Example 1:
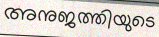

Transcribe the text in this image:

അനുജത്തിയുടെ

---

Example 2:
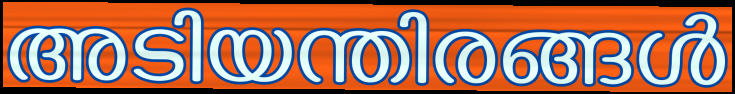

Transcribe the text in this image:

അടിയന്തിരങ്ങൾ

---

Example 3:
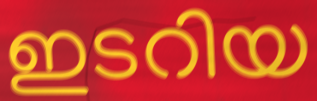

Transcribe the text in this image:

ഇടറിയ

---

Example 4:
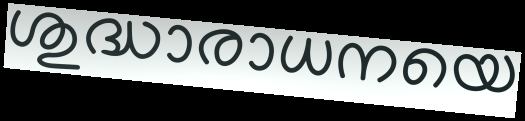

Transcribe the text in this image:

ശുദ്ധാരാധനയെ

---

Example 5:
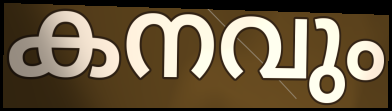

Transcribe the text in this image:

കനവും